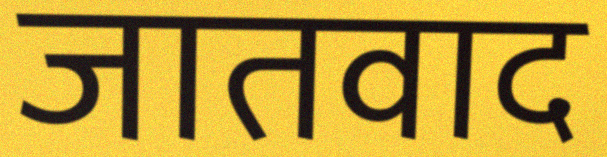
जातवाद